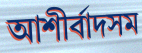
আশীর্বাদসম